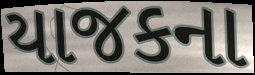
યાજકના